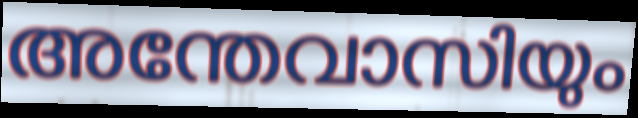
അന്തേവാസിയും